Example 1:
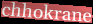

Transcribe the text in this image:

chhokrane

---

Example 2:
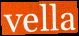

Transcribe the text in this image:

vella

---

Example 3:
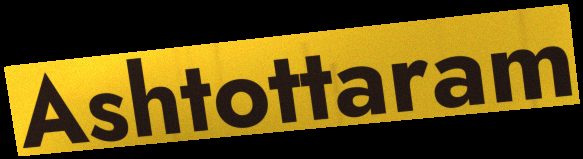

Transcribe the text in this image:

Ashtottaram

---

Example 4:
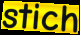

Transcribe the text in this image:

stich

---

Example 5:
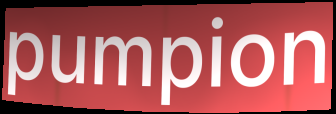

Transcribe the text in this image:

pumpion